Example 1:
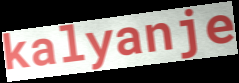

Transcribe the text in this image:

kalyanje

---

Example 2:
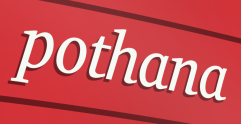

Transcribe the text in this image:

pothana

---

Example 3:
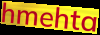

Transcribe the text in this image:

hmehta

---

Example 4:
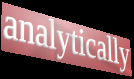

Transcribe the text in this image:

analytically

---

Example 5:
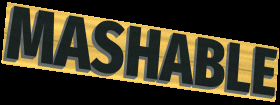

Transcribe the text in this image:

MASHABLE